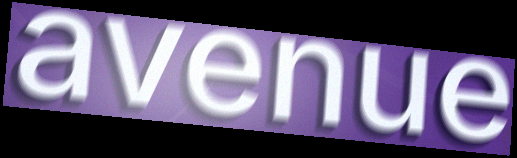
avenue